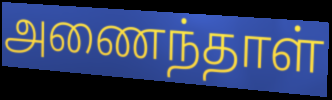
அணைந்தாள்